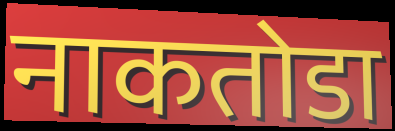
नाकतोडा